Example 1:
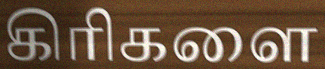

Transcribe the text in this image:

கிரிகளை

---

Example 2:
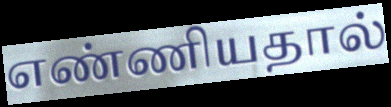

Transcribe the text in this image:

எண்ணியதால்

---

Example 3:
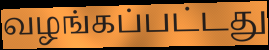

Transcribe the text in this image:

வழங்கப்பட்டது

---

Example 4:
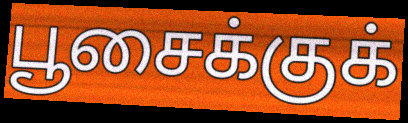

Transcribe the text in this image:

பூசைக்குக்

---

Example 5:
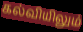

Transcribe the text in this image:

கல்வியிலும்